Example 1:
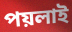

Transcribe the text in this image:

পয়লাই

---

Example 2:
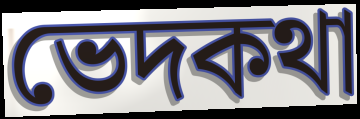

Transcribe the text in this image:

ভেদকথা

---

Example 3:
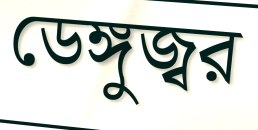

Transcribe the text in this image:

ডেঙ্গুজ্বর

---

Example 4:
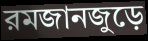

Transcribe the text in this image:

রমজানজুড়ে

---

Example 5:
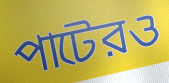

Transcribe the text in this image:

পাটেরও